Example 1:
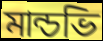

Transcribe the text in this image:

মান্ডভি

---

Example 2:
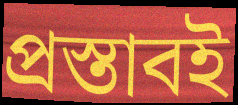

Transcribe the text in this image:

প্রস্তাবই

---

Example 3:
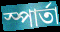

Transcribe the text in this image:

স্পার্তা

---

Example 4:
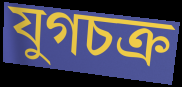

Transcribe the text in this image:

যুগচক্র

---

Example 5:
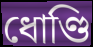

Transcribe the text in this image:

ধোণ্ডি